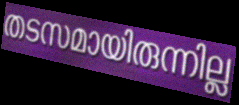
തടസമായിരുന്നില്ല